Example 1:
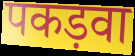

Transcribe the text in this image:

पकड़वा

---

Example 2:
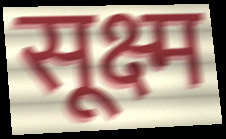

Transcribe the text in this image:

सूक्ष्‍म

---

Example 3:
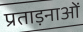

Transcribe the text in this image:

प्रताड़नाओं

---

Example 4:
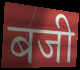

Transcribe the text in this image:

बजी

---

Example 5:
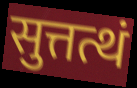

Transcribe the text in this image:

सुत्तत्थं